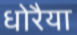
धोरैया